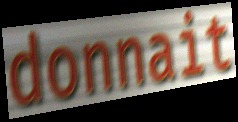
donnait